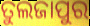
ତୁଲଜାପୁର